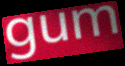
gum